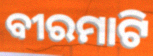
ବୀରମାଟି